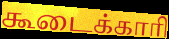
கூடைக்காரி